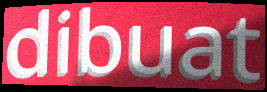
dibuat